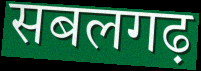
सबलगढ़